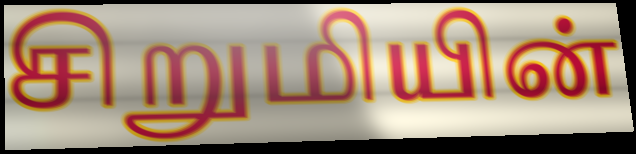
சிறுமியின்